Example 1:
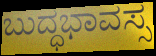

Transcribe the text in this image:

ಬುದ್ಧಭಾವಸ್ಸ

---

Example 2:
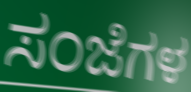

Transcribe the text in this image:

ಸಂಜೆಗಳ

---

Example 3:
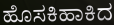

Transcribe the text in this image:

ಹೊಸಕಿಹಾಕಿದ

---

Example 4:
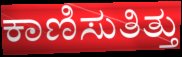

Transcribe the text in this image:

ಕಾಣಿಸುತಿತ್ತು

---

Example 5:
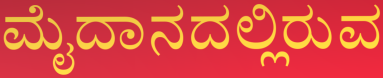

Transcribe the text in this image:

ಮೈದಾನದಲ್ಲಿರುವ